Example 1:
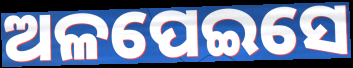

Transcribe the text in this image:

ଅଳପେଇସେ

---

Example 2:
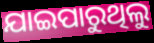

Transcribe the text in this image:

ଯାଇପାରୁଥିଲୁ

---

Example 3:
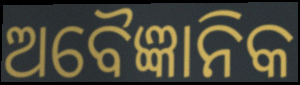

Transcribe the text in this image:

ଅବୈଜ୍ଞାନିକ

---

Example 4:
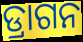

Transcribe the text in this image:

ଡ୍ରାଗନ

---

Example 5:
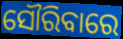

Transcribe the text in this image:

ସୌରିବାରେ